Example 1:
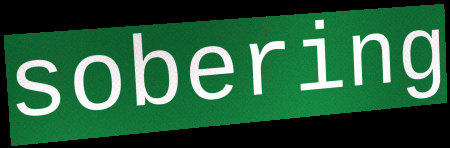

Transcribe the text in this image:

sobering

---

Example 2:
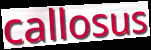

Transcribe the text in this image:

callosus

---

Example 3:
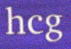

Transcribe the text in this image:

hcg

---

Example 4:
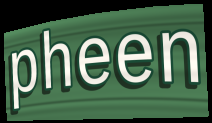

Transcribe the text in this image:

pheen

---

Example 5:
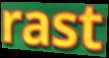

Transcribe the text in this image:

rast